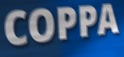
COPPA